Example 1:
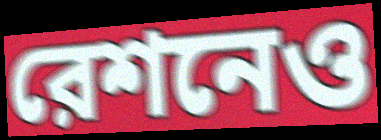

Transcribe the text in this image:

রেশনেও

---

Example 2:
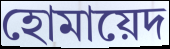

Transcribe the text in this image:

হোমায়েদ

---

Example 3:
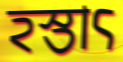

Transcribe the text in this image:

হস্তাৎ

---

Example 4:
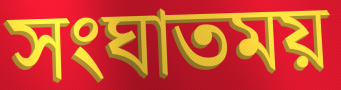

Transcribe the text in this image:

সংঘাতময়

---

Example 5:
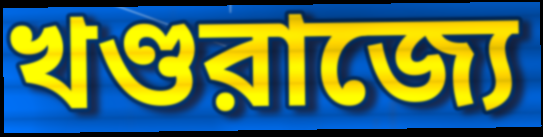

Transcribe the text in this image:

খণ্ডরাজ্যে